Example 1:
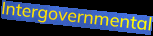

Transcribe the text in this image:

Intergovernmental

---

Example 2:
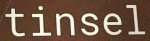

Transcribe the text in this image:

tinsel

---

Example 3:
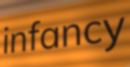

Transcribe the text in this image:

infancy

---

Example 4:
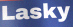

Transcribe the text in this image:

Lasky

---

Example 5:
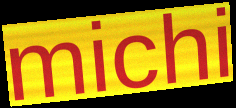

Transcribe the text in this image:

michi